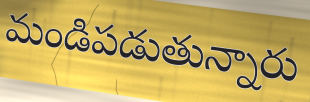
మండిపడుతున్నారు